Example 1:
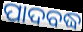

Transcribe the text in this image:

ପାଦବଦ୍ଧ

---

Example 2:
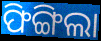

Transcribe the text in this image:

ଫିଙ୍ଗିଲା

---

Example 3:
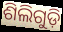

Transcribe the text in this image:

ଶିଲିଗୁଡ଼ି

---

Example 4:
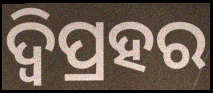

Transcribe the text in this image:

ଦ୍ବିପ୍ରହର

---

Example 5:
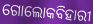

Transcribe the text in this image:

ଗୋଲୋକବିହାରୀ